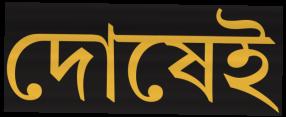
দোষেই